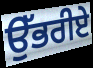
ਉੱਭਰੀਏ